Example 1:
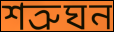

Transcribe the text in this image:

শত্ৰুঘন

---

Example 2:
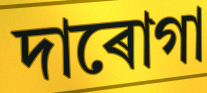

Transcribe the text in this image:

দাৰোগা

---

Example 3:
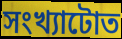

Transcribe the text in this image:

সংখ্যাটোত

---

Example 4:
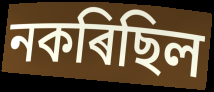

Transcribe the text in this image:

নকৰিছিল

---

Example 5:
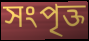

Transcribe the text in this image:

সংপৃক্ত